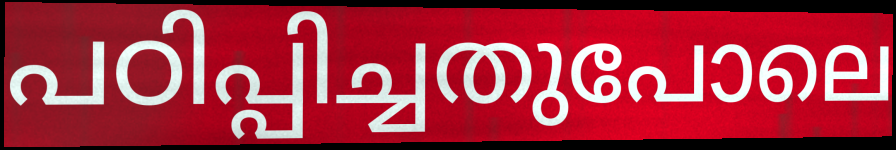
പഠിപ്പിച്ചതുപോലെ